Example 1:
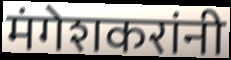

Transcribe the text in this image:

मंगेशकरांनी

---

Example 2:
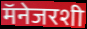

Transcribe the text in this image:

मॅनेजरशी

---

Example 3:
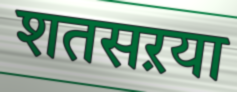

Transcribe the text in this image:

शतसऱया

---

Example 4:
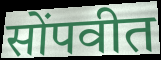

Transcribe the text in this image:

सोंपवीत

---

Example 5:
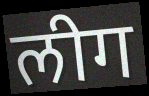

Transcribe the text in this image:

लीग